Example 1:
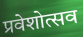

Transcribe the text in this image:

प्रवेशोत्सव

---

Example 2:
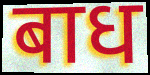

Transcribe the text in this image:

बाध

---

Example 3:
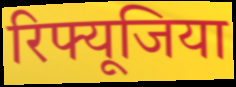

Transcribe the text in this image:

रिफ्यूजिया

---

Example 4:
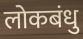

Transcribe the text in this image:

लोकबंधु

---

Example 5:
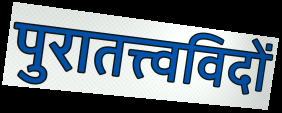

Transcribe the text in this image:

पुरातत्त्वविदों